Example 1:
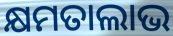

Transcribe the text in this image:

କ୍ଷମତାଲାଭ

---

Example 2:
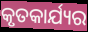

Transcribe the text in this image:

କୃତକାର୍ଯ୍ୟର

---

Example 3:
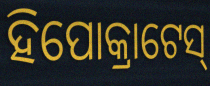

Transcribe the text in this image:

ହିପୋକ୍ରାଟେସ୍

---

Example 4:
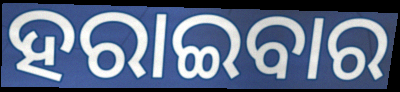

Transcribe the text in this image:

ହରାଇବାର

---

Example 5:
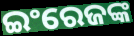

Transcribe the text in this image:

ଇଂରେଜଙ୍କ